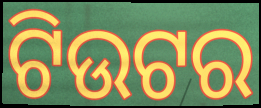
ଟିଉଟର